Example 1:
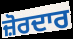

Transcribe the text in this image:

ਜ਼ੋਰਦਾਰ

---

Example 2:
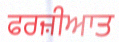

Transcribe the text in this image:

ਫਰਜ਼ੀਆਤ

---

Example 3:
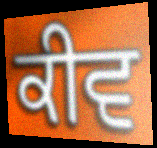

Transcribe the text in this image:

ਕੀਵ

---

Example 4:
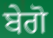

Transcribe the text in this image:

ਬੇਗੋ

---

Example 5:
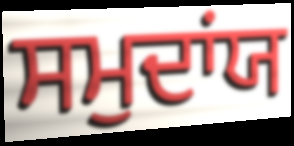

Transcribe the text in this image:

ਸਮੁਦਾਂਯ